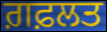
ਗ਼ਫ਼ਲਤ